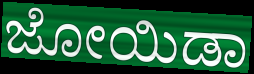
ಜೋಯಿಡಾ